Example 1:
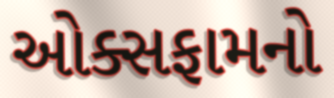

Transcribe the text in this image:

ઓક્સફામનો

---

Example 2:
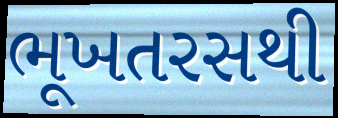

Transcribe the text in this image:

ભૂખતરસથી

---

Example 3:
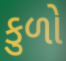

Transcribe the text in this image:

કુળો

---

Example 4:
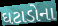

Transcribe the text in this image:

ઘટાડોના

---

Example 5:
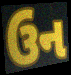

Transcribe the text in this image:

ઉન